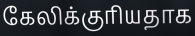
கேலிக்குரியதாக